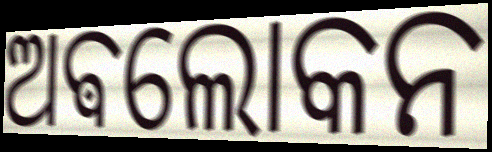
ଅଵଲୋକନ